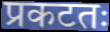
प्रकटतः